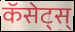
कॅसेट्स्